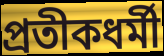
প্রতীকধর্মী